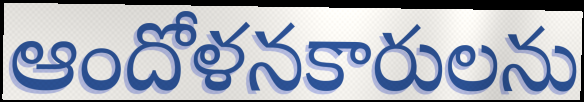
ఆందోళనకారులను